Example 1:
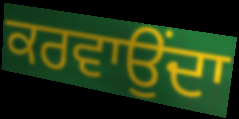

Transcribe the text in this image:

ਕਰਵਾਉਂਦਾ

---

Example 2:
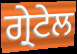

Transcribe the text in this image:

ਗ੍ਰੇਟੇਲ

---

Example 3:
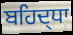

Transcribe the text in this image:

ਬਹਿਦ੍ਧਾ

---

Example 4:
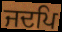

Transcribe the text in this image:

ਜਦਪਿ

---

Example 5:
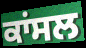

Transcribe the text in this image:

ਕਾਂਸਲ